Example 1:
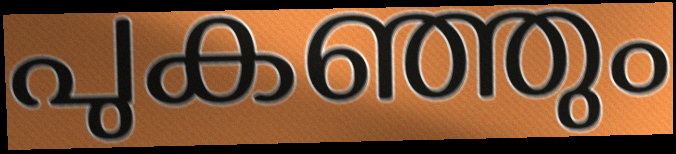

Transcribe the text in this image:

പുകഞ്ഞും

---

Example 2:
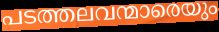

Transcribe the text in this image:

പടത്തലവന്മാരെയും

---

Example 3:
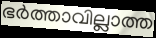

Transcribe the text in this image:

ഭർത്താവില്ലാത്ത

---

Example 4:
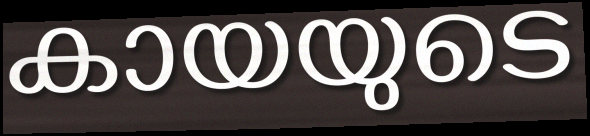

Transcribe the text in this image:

കായയുടെ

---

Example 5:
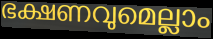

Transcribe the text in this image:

ഭക്ഷണവുമെല്ലാം